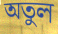
অতুল